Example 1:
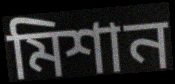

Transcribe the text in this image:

মিশান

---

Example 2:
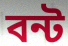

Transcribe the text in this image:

বন্ট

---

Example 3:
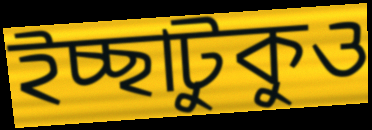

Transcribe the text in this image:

ইচ্ছাটুকুও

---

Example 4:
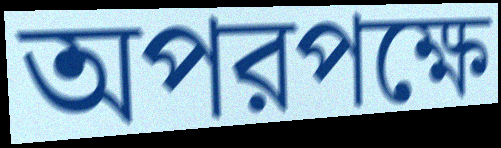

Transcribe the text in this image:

অপরপক্ষে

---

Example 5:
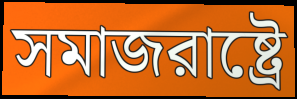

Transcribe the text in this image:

সমাজরাষ্ট্রে